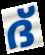
ദ്